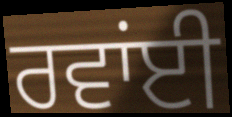
ਰਵਾਂਈ